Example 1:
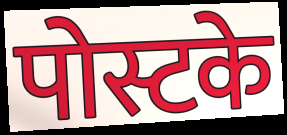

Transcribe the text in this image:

पोस्टके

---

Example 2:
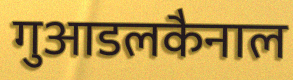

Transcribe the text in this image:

गुआडलकैनाल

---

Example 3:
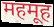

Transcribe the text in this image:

महमूह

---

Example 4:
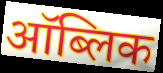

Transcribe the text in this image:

ऑब्लिक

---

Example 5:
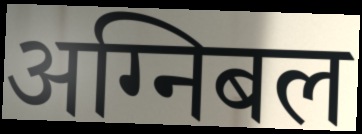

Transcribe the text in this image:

अग्निबल